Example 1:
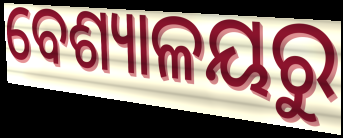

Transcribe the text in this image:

ବେଶ୍ୟାଳୟରୁ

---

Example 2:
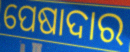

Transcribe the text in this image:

ପେଷାଦାର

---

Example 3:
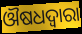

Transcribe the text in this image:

ଔଷଧଦ୍ବାରା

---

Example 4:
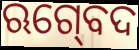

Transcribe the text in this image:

ଋଗ୍‍ବେଦ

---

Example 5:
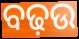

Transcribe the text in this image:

ବଢ଼ଉ